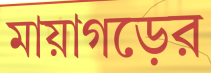
মায়াগড়ের